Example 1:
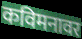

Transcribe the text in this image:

कविमनावर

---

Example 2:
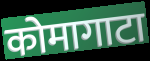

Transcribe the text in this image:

कोमागाटा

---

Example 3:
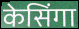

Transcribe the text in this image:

केसिंगा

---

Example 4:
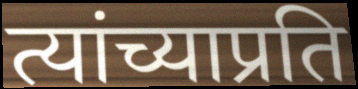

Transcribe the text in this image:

त्यांच्याप्रति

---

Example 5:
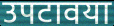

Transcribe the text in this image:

उपटावया